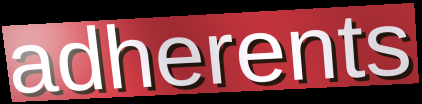
adherents